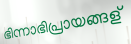
ഭിന്നാഭിപ്രായങ്ങള്